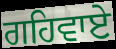
ਗਹਿਵਾਏ